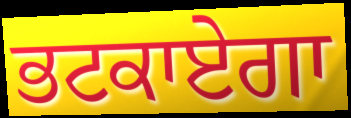
ਭਟਕਾਏਗਾ